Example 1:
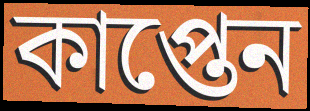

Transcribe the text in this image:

কাপ্তেন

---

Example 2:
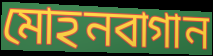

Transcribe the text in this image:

মোহনবাগান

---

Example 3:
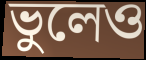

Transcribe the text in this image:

ভুলেও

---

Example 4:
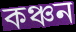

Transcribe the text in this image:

কঞ্চন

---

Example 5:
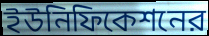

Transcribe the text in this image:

ইউনিফিকেশনের